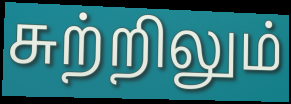
சுற்றிலும்